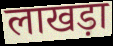
लाखड़ा